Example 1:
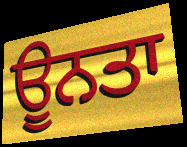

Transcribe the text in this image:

ਊਨਤਾ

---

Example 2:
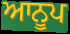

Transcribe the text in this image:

ਆਨੂਪ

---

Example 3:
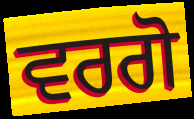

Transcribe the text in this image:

ਵਰਗੋ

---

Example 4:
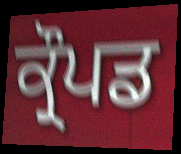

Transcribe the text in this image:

ਕ੍ਰੌਪਡ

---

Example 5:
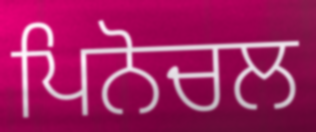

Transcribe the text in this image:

ਪਿਨੋਚਲ